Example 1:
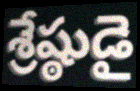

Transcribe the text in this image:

శ్రేష్ఠుడై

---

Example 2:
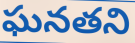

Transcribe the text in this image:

ఘనతని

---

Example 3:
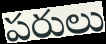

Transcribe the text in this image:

పరులు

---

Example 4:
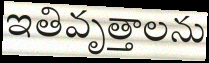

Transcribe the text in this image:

ఇతివృత్తాలను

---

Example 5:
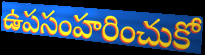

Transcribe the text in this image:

ఉపసంహరించుకో